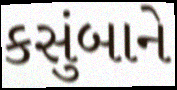
કસુંબાને